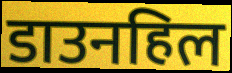
डाउनहिल